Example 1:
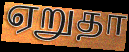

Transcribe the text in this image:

ஏறுதா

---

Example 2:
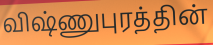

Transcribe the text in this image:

விஷ்ணுபுரத்தின்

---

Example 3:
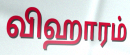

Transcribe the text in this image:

விஹாரம்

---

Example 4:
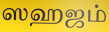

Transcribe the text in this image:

ஸஹஜம்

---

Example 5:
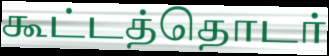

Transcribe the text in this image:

கூட்டத்தொடர்